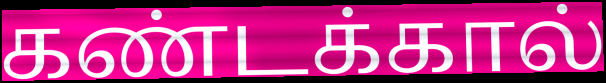
கண்டக்கால்